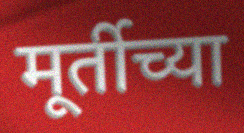
मूर्तीच्या